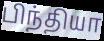
பிந்தியா